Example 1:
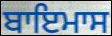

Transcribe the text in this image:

ਬਾਇਮਾਸ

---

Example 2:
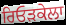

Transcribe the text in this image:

ਰਿਓੜਕੇਲਾ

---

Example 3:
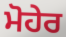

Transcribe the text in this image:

ਮੋਹੇਰ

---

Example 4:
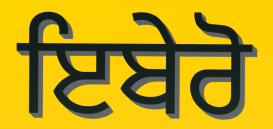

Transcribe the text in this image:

ਇਬੇਰੋ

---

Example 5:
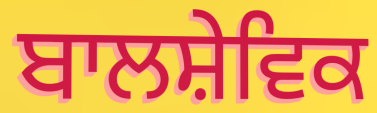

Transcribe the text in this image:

ਬਾਲਸ਼ੇਵਿਕ